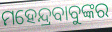
ମହେନ୍ଦ୍ରବାବୁଙ୍କର